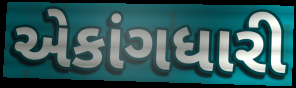
એકાંગધારી